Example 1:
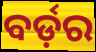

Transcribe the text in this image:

ବର୍ଡ଼ର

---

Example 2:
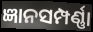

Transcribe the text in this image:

ଜ୍ଞାନସମ୍ପର୍ଣ୍ଣା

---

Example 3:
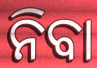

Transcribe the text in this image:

ନିବା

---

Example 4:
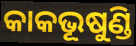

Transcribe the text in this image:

କାକଭୂଷୁଣ୍ଡି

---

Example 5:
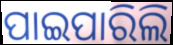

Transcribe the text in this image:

ପାଇପାରିଲି